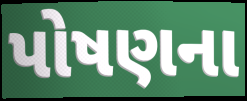
પોષણના